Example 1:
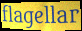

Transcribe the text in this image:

flagellar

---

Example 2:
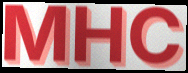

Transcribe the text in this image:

MHC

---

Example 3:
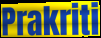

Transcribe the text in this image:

Prakriti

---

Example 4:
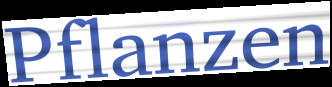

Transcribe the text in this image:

Pflanzen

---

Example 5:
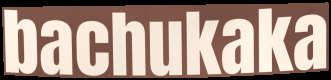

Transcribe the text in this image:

bachukaka